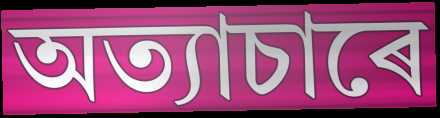
অত্যাচাৰে